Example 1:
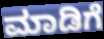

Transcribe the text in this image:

ಮಾಡಿಗೆ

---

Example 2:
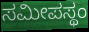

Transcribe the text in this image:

ಸಮೀಪಸ್ಥಂ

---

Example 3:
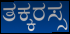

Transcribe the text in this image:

ತಕ್ಕರಸ್ಸ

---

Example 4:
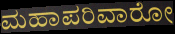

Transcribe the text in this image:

ಮಹಾಪರಿವಾರೋ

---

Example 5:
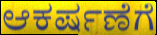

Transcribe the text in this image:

ಆಕರ್ಷಣೆಗೆ